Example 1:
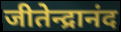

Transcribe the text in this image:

जीतेन्द्रानंद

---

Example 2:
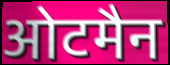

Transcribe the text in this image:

ओटमैन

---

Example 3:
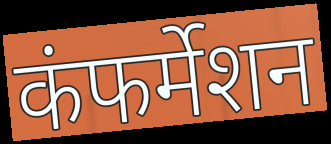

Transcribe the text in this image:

कंफर्मेशन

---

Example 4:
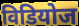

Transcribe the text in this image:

विडियोज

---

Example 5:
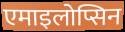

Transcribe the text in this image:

एमाइलोप्सिन